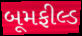
બૂમફીલ્ડ